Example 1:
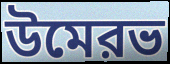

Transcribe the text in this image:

উমেরভ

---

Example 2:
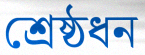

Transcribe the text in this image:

শ্রেষ্ঠধন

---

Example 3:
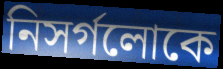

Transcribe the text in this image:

নিসর্গলোকে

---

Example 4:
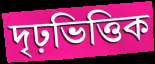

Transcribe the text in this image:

দৃঢ়ভিত্তিক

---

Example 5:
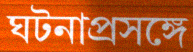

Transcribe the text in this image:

ঘটনাপ্রসঙ্গে